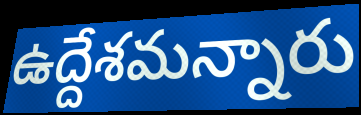
ఉద్దేశమన్నారు